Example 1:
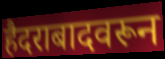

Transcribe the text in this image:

हैदराबादवरून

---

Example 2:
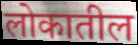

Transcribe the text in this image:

लोकातील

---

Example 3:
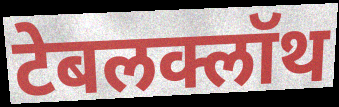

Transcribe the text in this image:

टेबलक्लॉथ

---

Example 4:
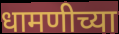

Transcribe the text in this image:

धामणीच्या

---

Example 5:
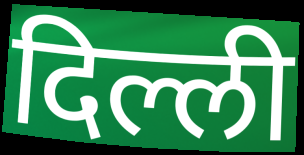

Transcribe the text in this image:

दिल्‍ली